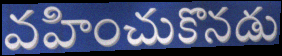
వహించుకొనడు